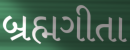
બ્રહ્મગીતા